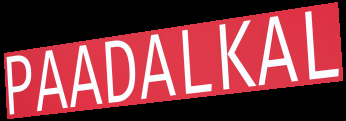
PAADALKAL